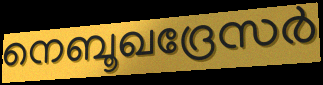
നെബൂഖദ്രേസർ